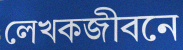
লেখকজীবনে